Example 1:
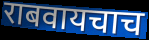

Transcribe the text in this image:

राबवायचाच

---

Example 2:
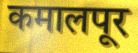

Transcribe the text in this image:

कमालपूर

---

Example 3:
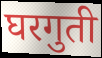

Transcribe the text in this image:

घरगुती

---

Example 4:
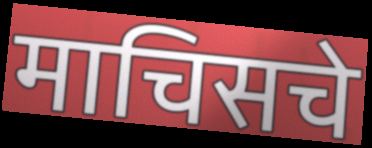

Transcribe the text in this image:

माचिसचे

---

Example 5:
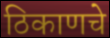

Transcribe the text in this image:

ठिकाणचे